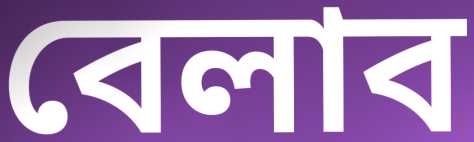
বেলাব